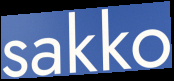
sakko